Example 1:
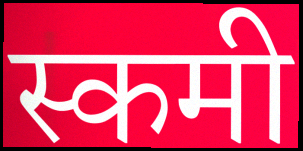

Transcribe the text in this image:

स्कमी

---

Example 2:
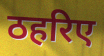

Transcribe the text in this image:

ठहरिए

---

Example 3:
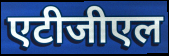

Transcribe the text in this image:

एटीजीएल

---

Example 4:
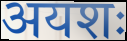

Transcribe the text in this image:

अयशः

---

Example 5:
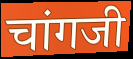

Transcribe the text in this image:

चांगजी